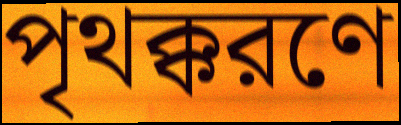
পৃথক্করণে